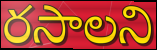
రసాలని